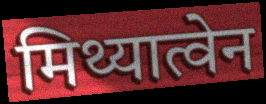
मिथ्यात्वेन